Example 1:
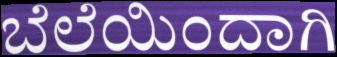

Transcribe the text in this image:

ಬೆಲೆಯಿಂದಾಗಿ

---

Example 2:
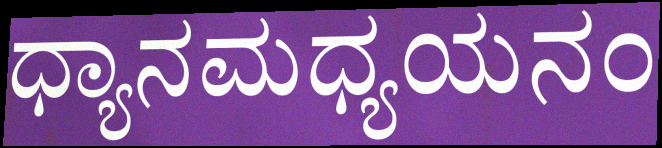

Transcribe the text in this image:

ಧ್ಯಾನಮಧ್ಯಯನಂ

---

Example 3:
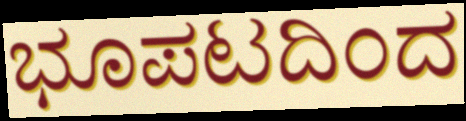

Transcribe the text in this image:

ಭೂಪಟದಿಂದ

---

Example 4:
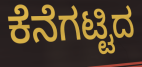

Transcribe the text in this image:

ಕೆನೆಗಟ್ಟಿದ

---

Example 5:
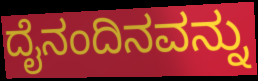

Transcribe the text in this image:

ದೈನಂದಿನವನ್ನು